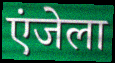
एंजेला